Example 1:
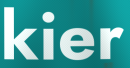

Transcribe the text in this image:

kier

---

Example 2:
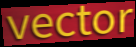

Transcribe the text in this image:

vector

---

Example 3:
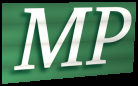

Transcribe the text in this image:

MP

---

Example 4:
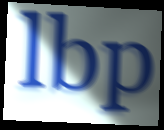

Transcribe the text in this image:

lbp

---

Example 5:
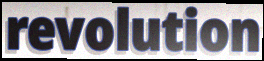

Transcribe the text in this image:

revolution